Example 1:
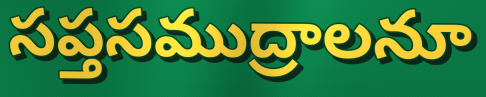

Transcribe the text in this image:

సప్తసముద్రాలనూ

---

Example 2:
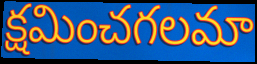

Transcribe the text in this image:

క్షమించగలమా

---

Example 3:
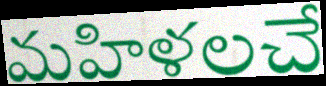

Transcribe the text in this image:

మహిళలచే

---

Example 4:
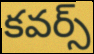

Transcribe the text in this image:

కవర్స్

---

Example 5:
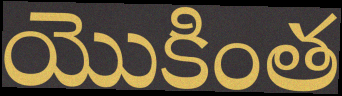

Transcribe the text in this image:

యొకింత